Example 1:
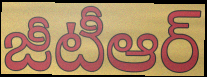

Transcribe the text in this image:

జీటీఆర్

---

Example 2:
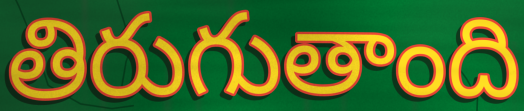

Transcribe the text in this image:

తిరుగుతాంది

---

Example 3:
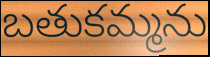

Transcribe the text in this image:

బతుకమ్మను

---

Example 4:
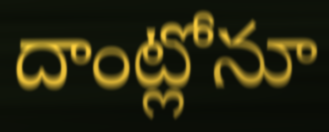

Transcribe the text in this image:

దాంట్లోనూ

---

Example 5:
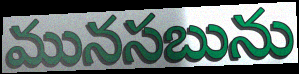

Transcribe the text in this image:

మునసబును